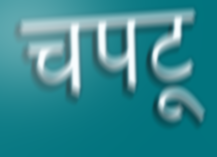
चपटू